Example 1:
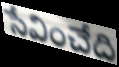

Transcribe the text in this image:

సేవించేది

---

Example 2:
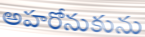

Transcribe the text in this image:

అహరోనుకును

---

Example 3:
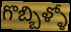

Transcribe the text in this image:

గొబ్బిళ్ళో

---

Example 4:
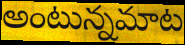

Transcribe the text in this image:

అంటున్నమాట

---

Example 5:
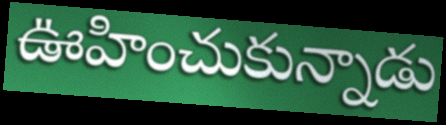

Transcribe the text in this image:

ఊహించుకున్నాడు